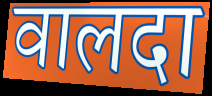
वालदा